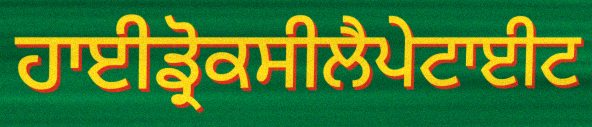
ਹਾਈਡ੍ਰੋਕਸੀਲੈਪੇਟਾਈਟ